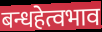
बन्धहेत्वभाव